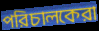
পরিচালকেরা